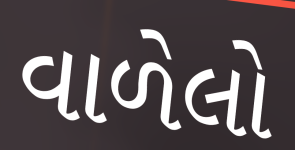
વાળેલો